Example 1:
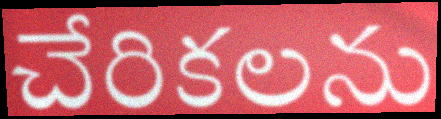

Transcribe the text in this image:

చేరికలను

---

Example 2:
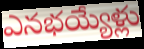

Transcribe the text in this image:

ఎనభయ్యేళ్లు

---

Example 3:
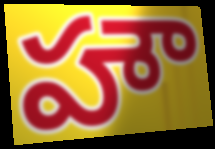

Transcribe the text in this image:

హౌ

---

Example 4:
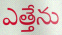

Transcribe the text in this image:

ఎత్తేను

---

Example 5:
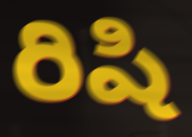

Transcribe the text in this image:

రిషి